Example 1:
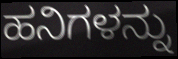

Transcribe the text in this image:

ಹನಿಗಳನ್ನು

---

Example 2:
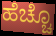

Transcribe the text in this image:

ಹೆಚ್ಚೊ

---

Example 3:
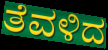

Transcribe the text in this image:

ತೆವಳಿದ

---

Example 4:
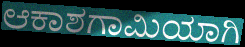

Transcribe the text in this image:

ಆಕಾಶಗಾಮಿಯಾಗಿ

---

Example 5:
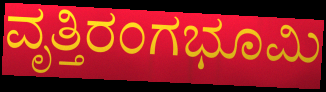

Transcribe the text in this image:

ವೃತ್ತಿರಂಗಭೂಮಿ